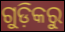
ଗୁଡ଼ିକରୁ